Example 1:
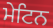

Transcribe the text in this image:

ਮੇਟਿਨ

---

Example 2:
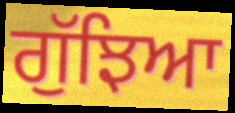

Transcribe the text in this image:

ਗੁੱਝਿਆ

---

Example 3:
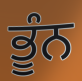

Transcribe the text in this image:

ਭੂੰਨ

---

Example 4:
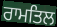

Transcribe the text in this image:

ਰਾਮਤਿਲ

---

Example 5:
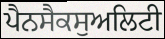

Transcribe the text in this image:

ਪੈਨਸੈਕਸੁਅਲਿਟੀ